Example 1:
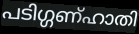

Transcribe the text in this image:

പടിഗ്ഗണ്ഹാതി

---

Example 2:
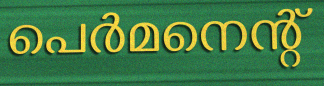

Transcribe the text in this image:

പെർമനെന്റ്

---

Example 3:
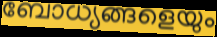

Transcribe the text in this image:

ബോധ്യങ്ങളെയും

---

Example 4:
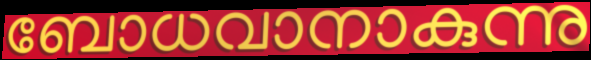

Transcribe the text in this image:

ബോധവാനാകുന്നു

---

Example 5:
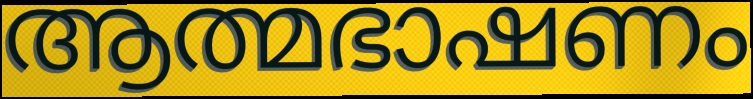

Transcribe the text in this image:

ആത്മഭാഷണം